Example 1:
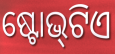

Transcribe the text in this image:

ଷ୍ଟୋଭ୍‌ଟିଏ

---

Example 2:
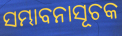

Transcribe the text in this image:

ସମ୍ଭାବନାସୂଚକ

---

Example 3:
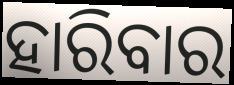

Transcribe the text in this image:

ହାରିବାର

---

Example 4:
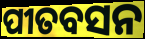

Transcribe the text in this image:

ପୀତବସନ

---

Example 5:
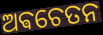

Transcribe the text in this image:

ଅଵଚେତନ